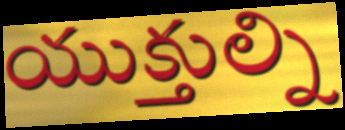
యుక్తుల్ని